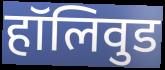
हॉलिवुड